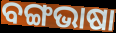
ବଙ୍ଗଭାଷା